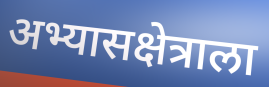
अभ्यासक्षेत्राला